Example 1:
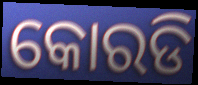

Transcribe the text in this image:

କୋରଡି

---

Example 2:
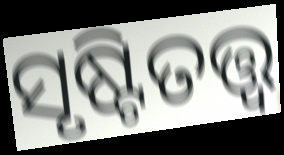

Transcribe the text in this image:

ସୃଷ୍ଟିତତ୍ତ୍ୱ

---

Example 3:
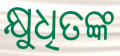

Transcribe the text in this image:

କ୍ଷୁଧିତଙ୍କ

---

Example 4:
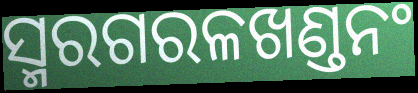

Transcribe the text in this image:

ସ୍ମରଗରଳଖଣ୍ଡନଂ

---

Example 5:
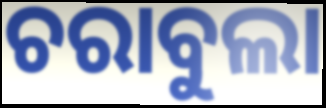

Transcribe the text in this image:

ଚରାବୁଲା